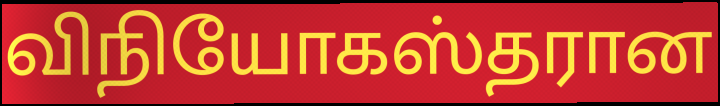
விநியோகஸ்தரான